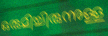
ഒരുമിച്ചിരുന്നുള്ള